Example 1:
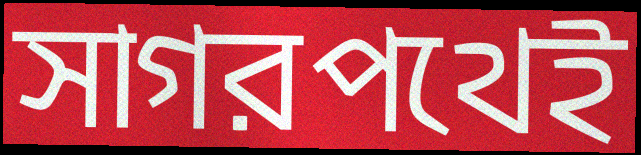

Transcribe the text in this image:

সাগরপথেই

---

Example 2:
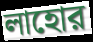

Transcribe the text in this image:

লাহোর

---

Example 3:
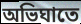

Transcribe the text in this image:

অভিঘাতে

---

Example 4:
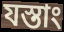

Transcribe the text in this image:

যস্তাং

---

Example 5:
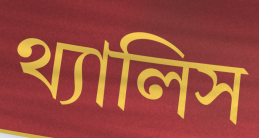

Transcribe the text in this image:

থ্যালিস